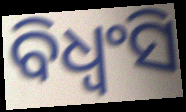
ବିଧ୍ୱଂସି